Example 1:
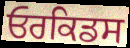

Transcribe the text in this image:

ਓਰਕਿਡਸ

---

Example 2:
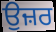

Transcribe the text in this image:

ਉਜ਼ਰ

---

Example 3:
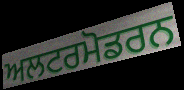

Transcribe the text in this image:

ਅਲਟਰਮੋਡਰਨ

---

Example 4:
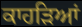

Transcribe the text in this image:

ਕਾਹੜਿਆਂ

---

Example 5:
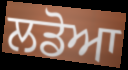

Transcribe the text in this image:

ਲਡੋਆ